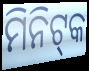
ମିନିଟ୍‍କ